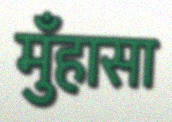
मुँहासा